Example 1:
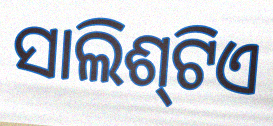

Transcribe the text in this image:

ସାଲିଶ୍‌ଟିଏ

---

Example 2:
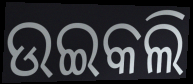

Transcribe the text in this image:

ଉଇକଲି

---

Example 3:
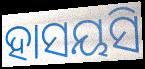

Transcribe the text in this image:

ହାସୟସି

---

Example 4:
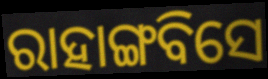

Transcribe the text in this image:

ରାହାଙ୍ଗବିସେ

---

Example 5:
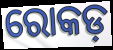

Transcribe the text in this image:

ରୋକଡ଼